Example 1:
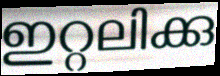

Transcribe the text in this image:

ഇറ്റലിക്കു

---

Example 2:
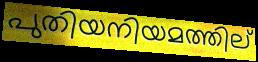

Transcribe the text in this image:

പുതിയനിയമത്തില്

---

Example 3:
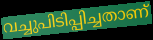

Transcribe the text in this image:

വച്ചുപിടിപ്പിച്ചതാണ്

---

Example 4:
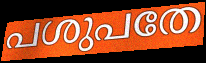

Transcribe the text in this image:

പശുപതേ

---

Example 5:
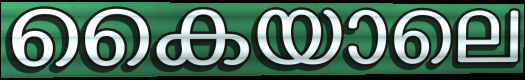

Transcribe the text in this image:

കൈയാലെ